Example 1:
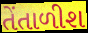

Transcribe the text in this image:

તેંતાળીશ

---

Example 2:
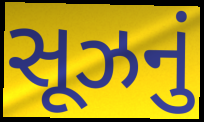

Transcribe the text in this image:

સૂઝનું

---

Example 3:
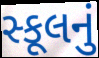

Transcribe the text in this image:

સ્કૂલનું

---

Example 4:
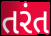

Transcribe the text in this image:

તરંત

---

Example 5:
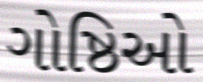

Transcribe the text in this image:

ગોષ્ઠિઓ